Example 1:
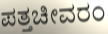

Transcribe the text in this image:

ಪತ್ತಚೀವರಂ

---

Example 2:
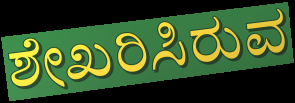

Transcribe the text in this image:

ಶೇಖರಿಸಿರುವ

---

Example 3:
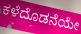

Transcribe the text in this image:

ಕಳೆದೊಡನೆಯೇ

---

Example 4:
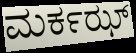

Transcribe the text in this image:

ಮರ್ಕಝ್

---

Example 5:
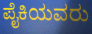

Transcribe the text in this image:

ಪೈಕಿಯವರು